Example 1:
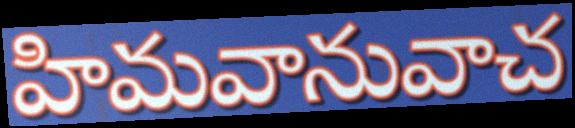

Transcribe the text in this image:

హిమవానువాచ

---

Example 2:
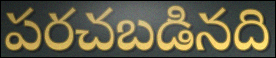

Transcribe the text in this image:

పరచబడినది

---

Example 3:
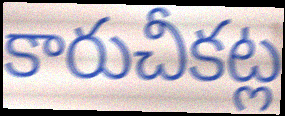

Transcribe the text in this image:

కారుచీకట్ల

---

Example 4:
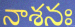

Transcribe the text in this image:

నాశనః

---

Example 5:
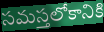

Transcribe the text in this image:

సమస్తలోకానికి